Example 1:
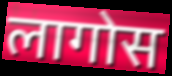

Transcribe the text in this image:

लागोस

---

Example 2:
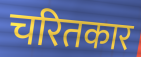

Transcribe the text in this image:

चरितकार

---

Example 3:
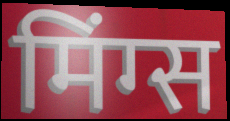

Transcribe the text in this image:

मिंग्स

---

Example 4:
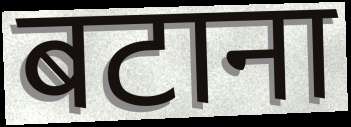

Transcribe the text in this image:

बटाना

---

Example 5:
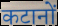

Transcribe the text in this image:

कटानों